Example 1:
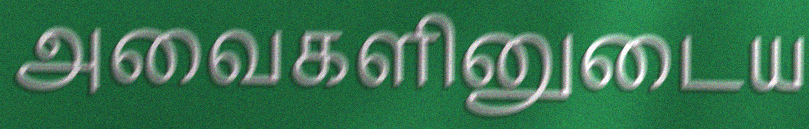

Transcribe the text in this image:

அவைகளினுடைய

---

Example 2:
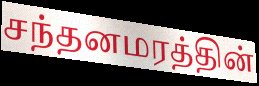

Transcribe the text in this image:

சந்தனமரத்தின்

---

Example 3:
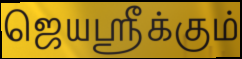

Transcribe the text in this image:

ஜெயஸ்ரீக்கும்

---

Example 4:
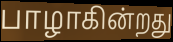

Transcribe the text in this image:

பாழாகின்றது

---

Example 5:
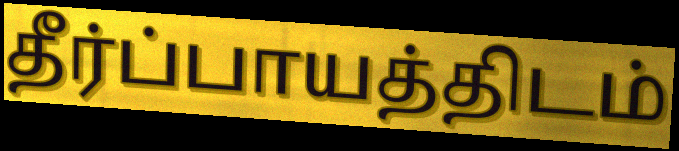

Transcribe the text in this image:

தீர்ப்பாயத்திடம்